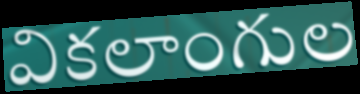
వికలాంగుల